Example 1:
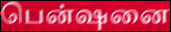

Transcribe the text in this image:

பென்ஷனை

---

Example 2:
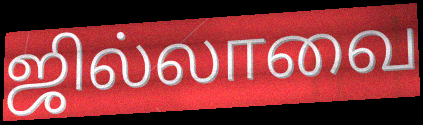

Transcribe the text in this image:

ஜில்லாவை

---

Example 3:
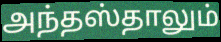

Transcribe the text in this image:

அந்தஸ்தாலும்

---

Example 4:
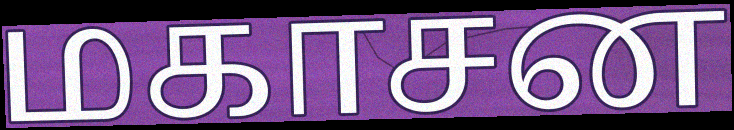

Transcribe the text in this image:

மகாசன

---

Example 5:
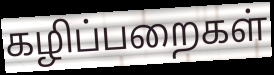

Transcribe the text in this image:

கழிப்பறைகள்